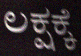
ಲಕ್ಷಕ್ಕೆ